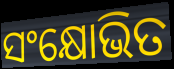
ସଂକ୍ଷୋଭିତ